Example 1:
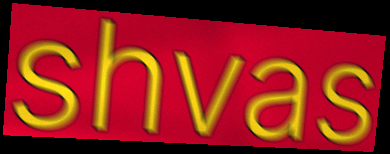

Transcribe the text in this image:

shvas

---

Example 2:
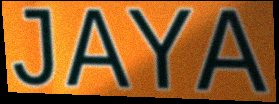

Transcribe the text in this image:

JAYA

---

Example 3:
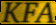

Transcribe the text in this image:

KFA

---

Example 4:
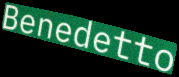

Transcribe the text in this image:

Benedetto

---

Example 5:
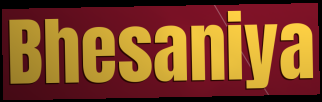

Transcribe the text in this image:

Bhesaniya